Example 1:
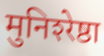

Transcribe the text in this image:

मुनिश्रेष्ठा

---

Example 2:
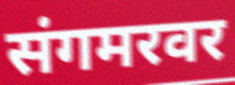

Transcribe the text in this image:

संगमरवर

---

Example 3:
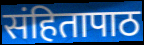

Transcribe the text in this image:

संहितापाठ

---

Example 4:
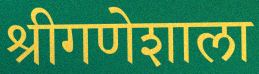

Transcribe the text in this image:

श्रीगणेशाला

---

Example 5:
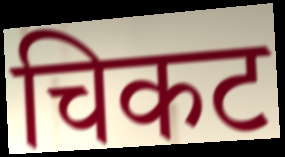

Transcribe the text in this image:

चिकट